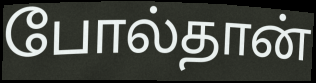
போல்தான்